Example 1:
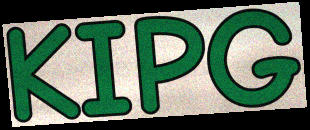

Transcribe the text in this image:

KIPG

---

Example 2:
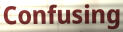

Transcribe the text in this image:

Confusing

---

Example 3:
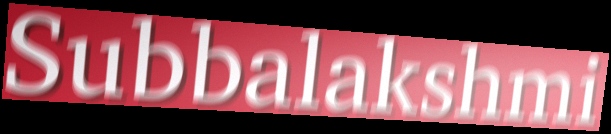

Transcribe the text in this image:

Subbalakshmi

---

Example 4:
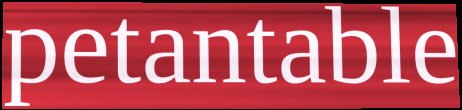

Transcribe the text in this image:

petantable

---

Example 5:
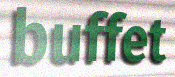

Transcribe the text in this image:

buffet